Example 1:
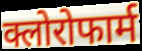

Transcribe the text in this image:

क्लोरोफार्म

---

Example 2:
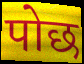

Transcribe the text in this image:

पोछ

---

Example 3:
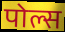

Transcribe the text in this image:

पोल्‍स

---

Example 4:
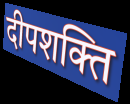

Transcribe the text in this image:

दीपशक्ति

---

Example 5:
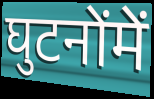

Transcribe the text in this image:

घुटनोंमें